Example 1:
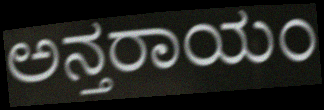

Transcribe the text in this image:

ಅನ್ತರಾಯಂ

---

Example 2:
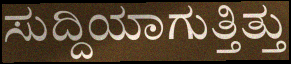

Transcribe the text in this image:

ಸುದ್ದಿಯಾಗುತ್ತಿತ್ತು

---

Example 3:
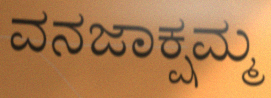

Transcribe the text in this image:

ವನಜಾಕ್ಷಮ್ಮ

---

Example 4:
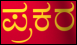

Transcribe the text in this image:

ಪ್ರಕರ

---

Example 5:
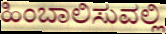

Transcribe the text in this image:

ಹಿಂಬಾಲಿಸುವಲ್ಲಿ